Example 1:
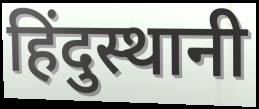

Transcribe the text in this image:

हिंदुस्थानी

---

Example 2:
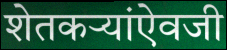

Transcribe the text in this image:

शेतकऱ्यांऐवजी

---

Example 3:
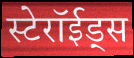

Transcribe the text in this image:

स्टेरॉईड्स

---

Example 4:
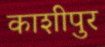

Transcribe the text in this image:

काशीपुर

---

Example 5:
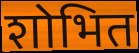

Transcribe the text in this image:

शोभित